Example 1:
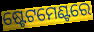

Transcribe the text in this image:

ଷ୍ଟେଟମେଣ୍ଟରେ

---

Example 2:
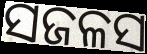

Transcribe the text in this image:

ସଜଳସ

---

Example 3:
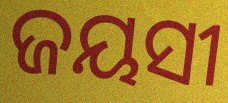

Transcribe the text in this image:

ଜୟସୀ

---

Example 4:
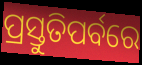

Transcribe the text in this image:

ପ୍ରସ୍ତୁତିପର୍ବରେ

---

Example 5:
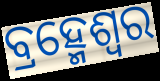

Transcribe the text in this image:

ବ୍ରହ୍ମେଶ୍ଵର